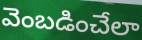
వెంబడించేలా